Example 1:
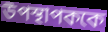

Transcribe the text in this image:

উপস্থাপককে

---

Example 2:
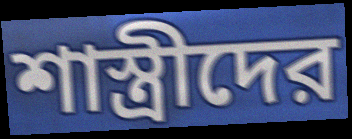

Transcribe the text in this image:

শাস্ত্রীদের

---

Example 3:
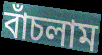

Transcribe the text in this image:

বাঁচলাম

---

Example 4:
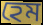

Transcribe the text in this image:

হেম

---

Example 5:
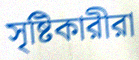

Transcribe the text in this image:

সৃষ্টিকারীরা